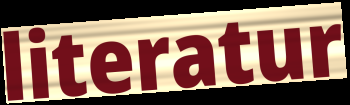
literatur